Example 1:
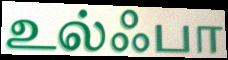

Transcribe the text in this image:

உல்ஃபா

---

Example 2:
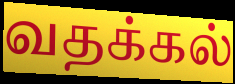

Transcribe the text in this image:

வதக்கல்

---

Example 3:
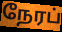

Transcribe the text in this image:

நேரப்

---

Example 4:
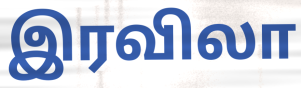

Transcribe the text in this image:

இரவிலா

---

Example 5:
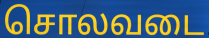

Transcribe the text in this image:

சொலவடை